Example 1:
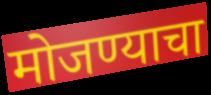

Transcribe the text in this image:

मोजण्याचा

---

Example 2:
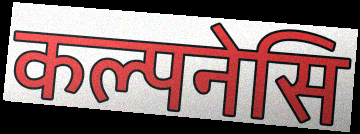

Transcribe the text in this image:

कल्पनेसि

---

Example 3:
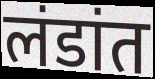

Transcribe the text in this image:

लंडांत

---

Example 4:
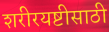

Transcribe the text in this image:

शरीरयष्टीसाठी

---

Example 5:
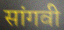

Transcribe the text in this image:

सांगवी